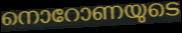
നൊറോണയുടെ